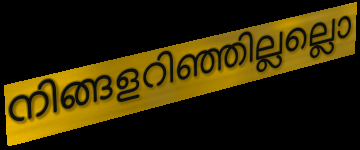
നിങ്ങളറിഞ്ഞില്ലല്ലൊ